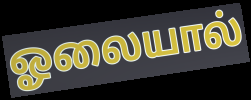
ஓலையால்